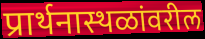
प्रार्थनास्थळांवरील